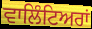
ਵਾਲਿੰਟਿਅਰਾਂ